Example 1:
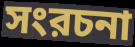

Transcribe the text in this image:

সংরচনা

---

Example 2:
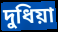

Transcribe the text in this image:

দুধিয়া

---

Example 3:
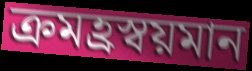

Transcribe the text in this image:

ক্রমহ্রস্বয়মান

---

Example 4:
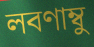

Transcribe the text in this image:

লবণাম্বু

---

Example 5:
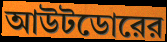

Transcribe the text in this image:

আউটডোরের